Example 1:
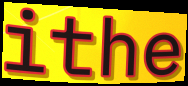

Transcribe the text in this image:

ithe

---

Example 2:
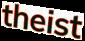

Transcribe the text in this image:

theist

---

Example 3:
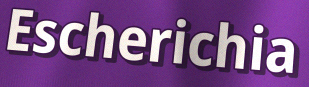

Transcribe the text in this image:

Escherichia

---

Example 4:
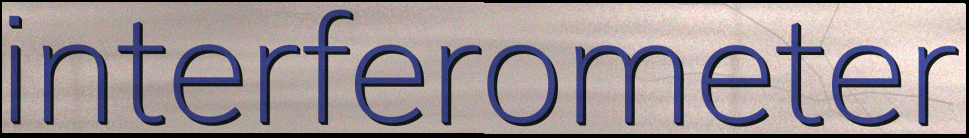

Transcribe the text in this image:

interferometer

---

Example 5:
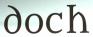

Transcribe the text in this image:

doch